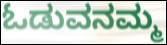
ಓಡುವನಮ್ಮ